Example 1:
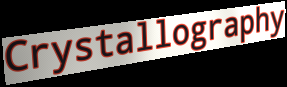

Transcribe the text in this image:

Crystallography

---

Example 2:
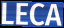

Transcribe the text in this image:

LECA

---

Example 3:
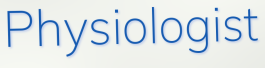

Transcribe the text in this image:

Physiologist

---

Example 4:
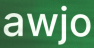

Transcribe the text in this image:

awjo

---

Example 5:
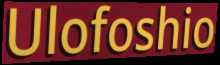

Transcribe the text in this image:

Ulofoshio